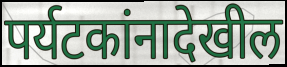
पर्यटकांनादेखील